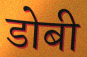
डोबी